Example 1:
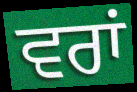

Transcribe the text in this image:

ਵਰਾਂ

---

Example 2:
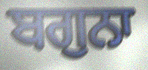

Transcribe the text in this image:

ਬਗੁਨਾ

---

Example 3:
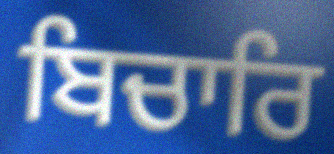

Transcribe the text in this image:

ਬਿਚਾਰਿ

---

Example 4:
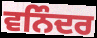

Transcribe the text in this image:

ਵਨਿੰਦਰ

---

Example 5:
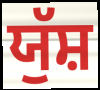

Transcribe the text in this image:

ਯੁੱਸ਼